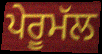
ਪੇਰੂਮੱਲ